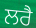
ਲਰੈ